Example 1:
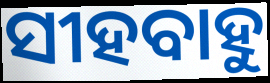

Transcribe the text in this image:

ସୀହବାହୁ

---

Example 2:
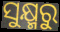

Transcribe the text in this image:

ସୁକ୍ଷ୍ମରୁ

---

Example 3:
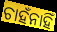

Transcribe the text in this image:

ଚାହଁନାହିଁ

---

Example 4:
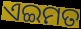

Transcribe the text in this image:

ଏଇମତ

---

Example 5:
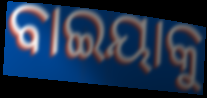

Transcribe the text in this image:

ବାଇୟାକୁ